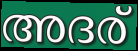
അദര്